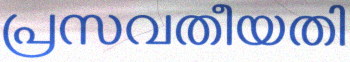
പ്രസവതീയതി